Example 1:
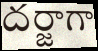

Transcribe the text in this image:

దర్జాగా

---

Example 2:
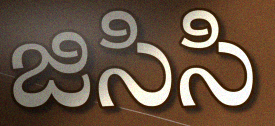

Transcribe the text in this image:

జిసిసి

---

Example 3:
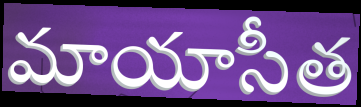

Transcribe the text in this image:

మాయాసీత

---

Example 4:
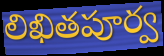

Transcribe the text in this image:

లిఖితపూర్వ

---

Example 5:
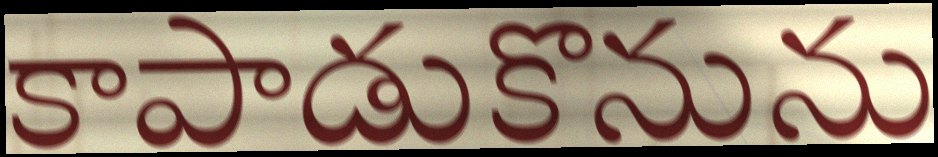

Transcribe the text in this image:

కాపాడుకొనును